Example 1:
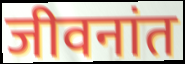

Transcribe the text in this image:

जीवनांत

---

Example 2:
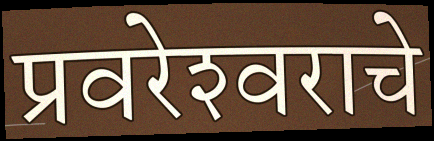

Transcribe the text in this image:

प्रवरेश्वराचे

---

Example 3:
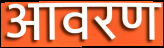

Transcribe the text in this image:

आवरण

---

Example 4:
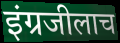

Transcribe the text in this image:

इंग्रजीलाच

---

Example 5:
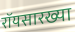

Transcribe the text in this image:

रॉयसारख्या